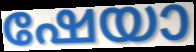
ഷേയാ